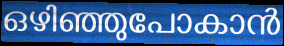
ഒഴിഞ്ഞുപോകാൻ